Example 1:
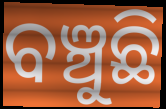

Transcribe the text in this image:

ବଞ୍ଚୁଛି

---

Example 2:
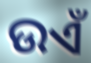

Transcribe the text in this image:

ଉଏଁ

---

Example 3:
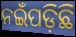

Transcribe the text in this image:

ନଇଁପଡ଼ିଛି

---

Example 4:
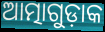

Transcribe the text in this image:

ଆତ୍ମାଗୁଡ଼ାକ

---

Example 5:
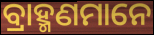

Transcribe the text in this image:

ବ୍ରାହ୍ମଣମାନେ